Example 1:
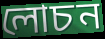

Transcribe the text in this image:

লোচন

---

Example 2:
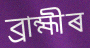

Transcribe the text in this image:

ব্ৰাহ্মীৰ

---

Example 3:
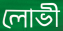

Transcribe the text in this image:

লোভী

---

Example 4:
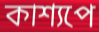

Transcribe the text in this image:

কাশ্যপে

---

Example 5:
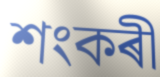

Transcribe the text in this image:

শংকৰী